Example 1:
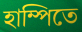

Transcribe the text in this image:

হাম্পিতে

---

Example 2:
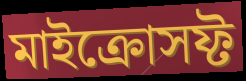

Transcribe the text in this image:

মাইক্রোসফ্ট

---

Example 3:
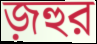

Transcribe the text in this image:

জ়হুর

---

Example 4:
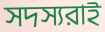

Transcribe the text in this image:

সদস্যরাই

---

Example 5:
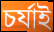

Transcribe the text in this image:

চর্যাই